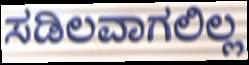
ಸಡಿಲವಾಗಲಿಲ್ಲ